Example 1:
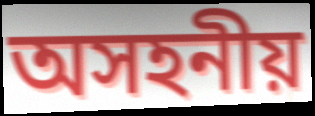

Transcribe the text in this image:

অসহনীয়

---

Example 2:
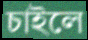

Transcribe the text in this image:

চাইলে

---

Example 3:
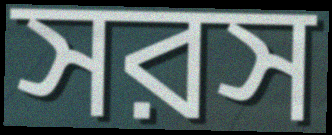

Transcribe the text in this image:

সরস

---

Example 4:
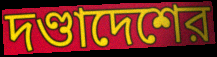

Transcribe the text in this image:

দণ্ডাদেশের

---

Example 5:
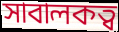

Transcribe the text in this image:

সাবালকত্ব